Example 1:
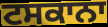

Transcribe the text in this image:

ਟਸਕਾਨਾ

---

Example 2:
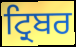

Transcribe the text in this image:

ਟ੍ਰਿਬਰ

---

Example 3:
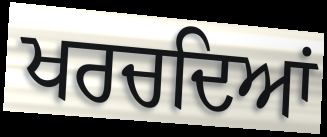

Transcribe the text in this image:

ਖਰਚਦਿਆਂ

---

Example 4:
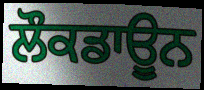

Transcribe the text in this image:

ਲੌਕਡਾਊਨ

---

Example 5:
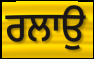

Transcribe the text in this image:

ਰਲਾਉ